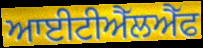
ਆਈਟੀਐੱਲਐੱਫ